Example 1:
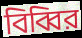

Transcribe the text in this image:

বিব্বির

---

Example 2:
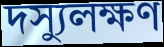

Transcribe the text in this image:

দস্যুলক্ষণ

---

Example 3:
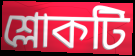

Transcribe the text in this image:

শ্লোকটি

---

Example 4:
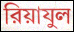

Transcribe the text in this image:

রিয়াযুল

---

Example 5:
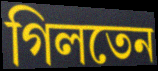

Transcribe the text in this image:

গিলতেন